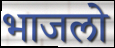
भाजलो